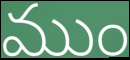
ముం